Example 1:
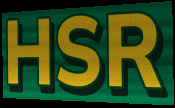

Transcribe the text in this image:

HSR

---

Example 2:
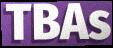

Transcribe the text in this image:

TBAs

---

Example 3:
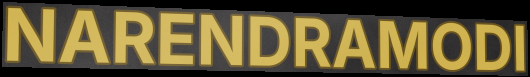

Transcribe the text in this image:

NARENDRAMODI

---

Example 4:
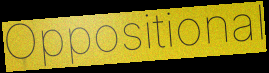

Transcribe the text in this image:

Oppositional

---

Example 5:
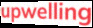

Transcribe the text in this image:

upwelling